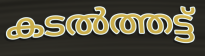
കടൽത്തട്ട്